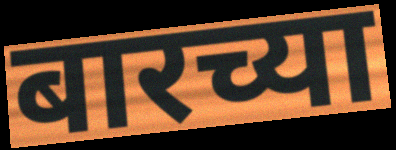
बारच्या